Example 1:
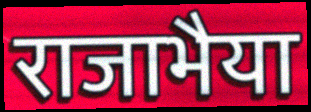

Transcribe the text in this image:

राजाभैया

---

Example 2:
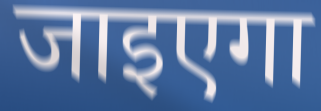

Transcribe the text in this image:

जाइएगा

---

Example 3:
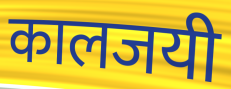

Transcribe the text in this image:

कालजयी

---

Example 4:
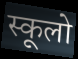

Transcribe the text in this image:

स्कूलो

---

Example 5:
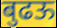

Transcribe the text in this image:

बुढऊ